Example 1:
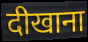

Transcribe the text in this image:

दीखाना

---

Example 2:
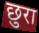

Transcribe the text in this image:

छुरा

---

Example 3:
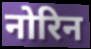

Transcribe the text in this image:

नोरिन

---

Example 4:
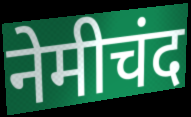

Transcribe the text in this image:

नेमीचंद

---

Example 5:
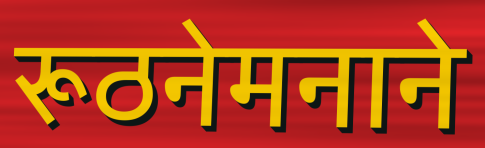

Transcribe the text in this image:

रूठनेमनाने